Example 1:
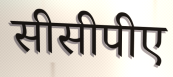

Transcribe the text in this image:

सीसीपीए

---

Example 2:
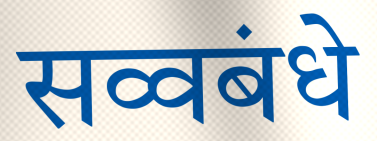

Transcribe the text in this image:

सव्वबंधे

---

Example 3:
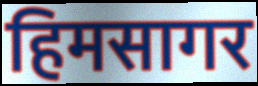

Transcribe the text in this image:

हिमसागर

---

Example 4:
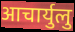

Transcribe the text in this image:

आचार्युलु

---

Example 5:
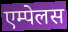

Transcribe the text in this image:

एम्पेलस